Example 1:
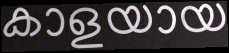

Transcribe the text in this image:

കാളയായ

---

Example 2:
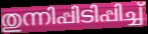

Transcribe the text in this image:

തുന്നിപ്പിടിപ്പിച്ച്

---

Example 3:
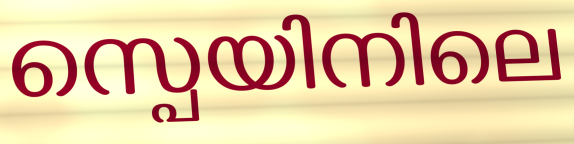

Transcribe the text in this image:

സ്പെയിനിലെ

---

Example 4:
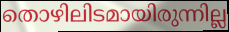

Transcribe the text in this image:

തൊഴിലിടമായിരുന്നില്ല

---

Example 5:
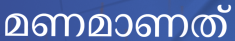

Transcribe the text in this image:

മണമാണത്